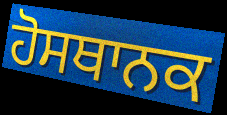
ਹੋਸਥਾਨਕ